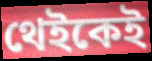
থেইকেই